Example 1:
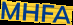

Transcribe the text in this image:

MHFA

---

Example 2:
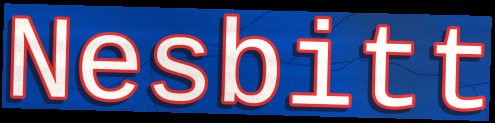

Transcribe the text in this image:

Nesbitt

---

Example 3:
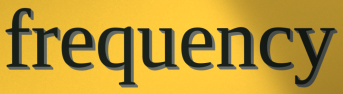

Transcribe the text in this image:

frequency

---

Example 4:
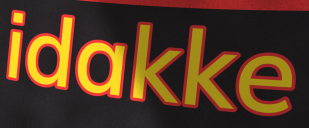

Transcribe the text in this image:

idakke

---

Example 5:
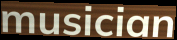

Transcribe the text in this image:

musician